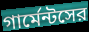
গার্মেন্টসের